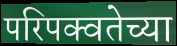
परिपक्वतेच्या